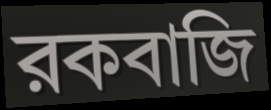
রকবাজি